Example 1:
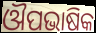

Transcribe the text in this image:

ଔପଭାଷିକ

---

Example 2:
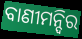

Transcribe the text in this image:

ବାଣୀମନ୍ଦିର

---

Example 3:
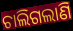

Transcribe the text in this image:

ଚାଲିଗଲାଣି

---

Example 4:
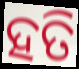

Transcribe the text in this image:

ହତି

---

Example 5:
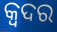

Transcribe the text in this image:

କ୍ୱଦର